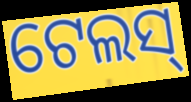
ଟେଲସ୍